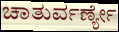
ಚಾತುರ್ವರ್ಣ್ಯೇ